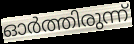
ഓർത്തിരുന്ന്